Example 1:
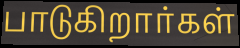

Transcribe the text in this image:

பாடுகிறார்கள்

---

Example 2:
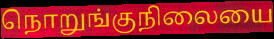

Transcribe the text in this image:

நொறுங்குநிலையை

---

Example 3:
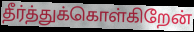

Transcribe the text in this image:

தீர்த்துக்கொள்கிறேன்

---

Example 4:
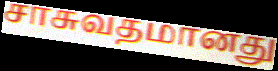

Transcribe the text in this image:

சாசுவதமானது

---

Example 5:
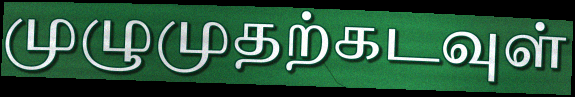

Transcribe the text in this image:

முழுமுதற்கடவுள்